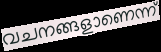
വചനങ്ങളാണെന്ന്